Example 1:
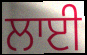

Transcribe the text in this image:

ਲਾਈ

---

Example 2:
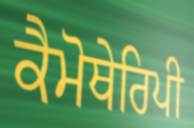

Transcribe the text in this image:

ਕੈਮੋਥੇਰਿਪੀ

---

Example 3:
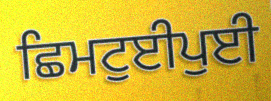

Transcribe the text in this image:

ਛਿਮਟੁਈਪੁਈ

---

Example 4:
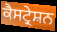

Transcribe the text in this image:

ਕੈਸਟ੍ਰੇਸ਼ਨ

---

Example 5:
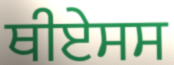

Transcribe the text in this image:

ਥੀਏਸਸ